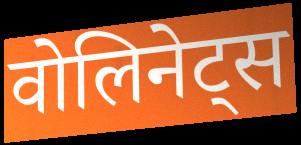
वोलिनेट्स